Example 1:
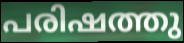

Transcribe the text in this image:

പരിഷത്തു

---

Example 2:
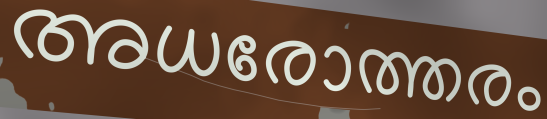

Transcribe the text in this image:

അധരോത്തരം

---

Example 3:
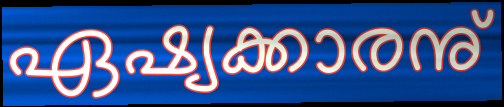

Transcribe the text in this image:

ഏഷ്യക്കാരനു്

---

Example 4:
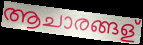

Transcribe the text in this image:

ആചാരങ്ങള്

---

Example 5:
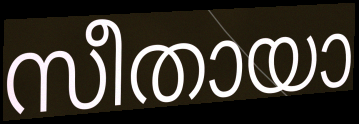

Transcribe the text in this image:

സീതായാ